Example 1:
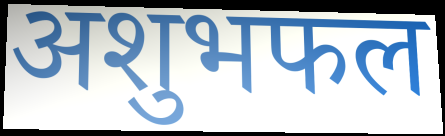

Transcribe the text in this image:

अशुभफल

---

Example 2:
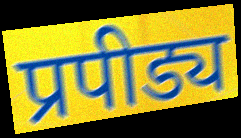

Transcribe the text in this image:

प्रपीड्य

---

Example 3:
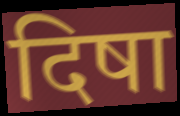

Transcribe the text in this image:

दिषा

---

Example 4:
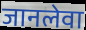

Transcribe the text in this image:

जानलेवा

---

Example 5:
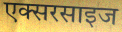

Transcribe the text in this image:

एक्‍सरसाइज